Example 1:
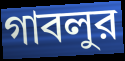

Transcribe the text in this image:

গাবলুর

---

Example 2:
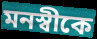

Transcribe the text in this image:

মনস্বীকে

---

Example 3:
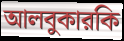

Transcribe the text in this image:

আলবুকারকি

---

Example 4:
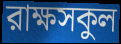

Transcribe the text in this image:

রাক্ষসকুল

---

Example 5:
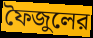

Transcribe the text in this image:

ফৈজুলের